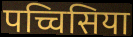
पच्चिसिया